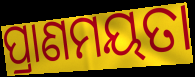
ପ୍ରାଣମୟତା